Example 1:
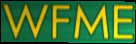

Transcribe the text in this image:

WFME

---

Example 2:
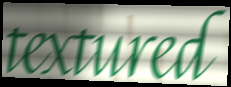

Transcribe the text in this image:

textured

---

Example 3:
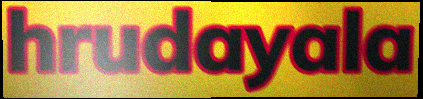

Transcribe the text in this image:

hrudayala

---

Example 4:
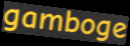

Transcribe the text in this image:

gamboge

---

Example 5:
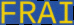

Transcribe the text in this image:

FRAI